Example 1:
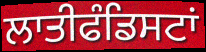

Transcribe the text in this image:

ਲਾਤੀਫੰਡਿਸਟਾਂ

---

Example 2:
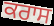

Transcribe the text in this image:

ਕਰਾਸ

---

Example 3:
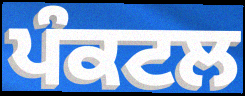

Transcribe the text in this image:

ਪੰਕਟਲ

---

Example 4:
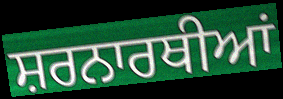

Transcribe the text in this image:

ਸ਼ਰਨਾਰਥੀਆਂ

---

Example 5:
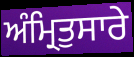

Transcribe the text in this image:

ਅੰਮ੍ਰਿਤੁਸਾਰੇ